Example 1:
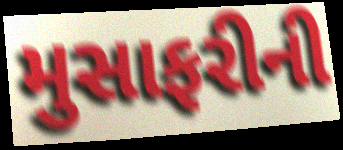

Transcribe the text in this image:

મુસાફરીની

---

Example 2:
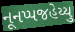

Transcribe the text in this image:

નૂનપ્પજહેય્યુ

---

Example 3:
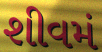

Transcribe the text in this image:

શીવમં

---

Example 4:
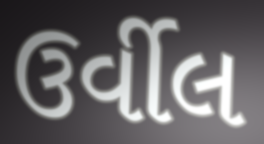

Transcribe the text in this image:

ઉર્વીલ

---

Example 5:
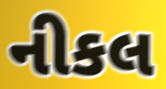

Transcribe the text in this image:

નીકલ